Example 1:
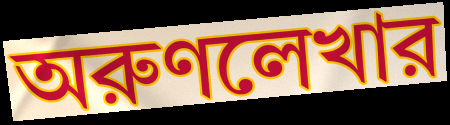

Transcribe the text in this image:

অরুণলেখার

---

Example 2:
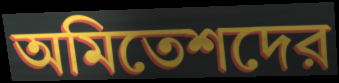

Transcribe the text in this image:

অমিতেশদের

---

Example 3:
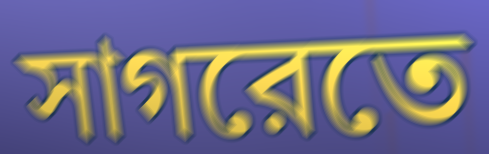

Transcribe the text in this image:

সাগরেতে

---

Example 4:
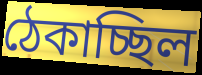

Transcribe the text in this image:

ঠেকাচ্ছিল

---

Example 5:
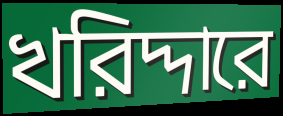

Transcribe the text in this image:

খরিদ্দারে